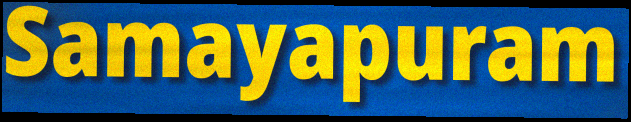
Samayapuram